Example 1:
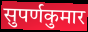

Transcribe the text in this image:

सुपर्णकुमार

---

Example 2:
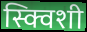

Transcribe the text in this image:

स्क्विशी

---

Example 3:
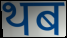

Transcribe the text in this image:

थब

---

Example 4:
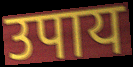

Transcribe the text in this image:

उपाय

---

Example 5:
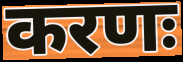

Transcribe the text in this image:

करणः